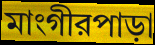
মাংগীরপাড়া